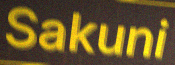
Sakuni